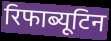
रिफाब्यूटिन